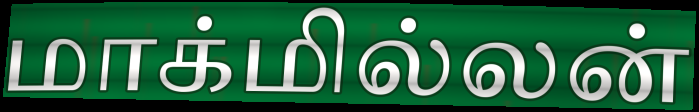
மாக்மில்லன்